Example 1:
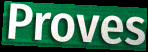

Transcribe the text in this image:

Proves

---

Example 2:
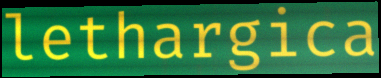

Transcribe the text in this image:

lethargica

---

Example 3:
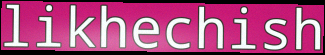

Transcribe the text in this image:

likhechish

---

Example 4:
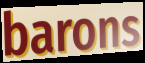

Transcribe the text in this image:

barons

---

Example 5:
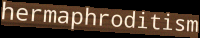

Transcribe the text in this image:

hermaphroditism